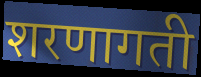
शरणागती